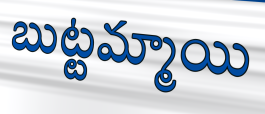
బుట్టమ్మాయి